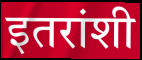
इतरांशी